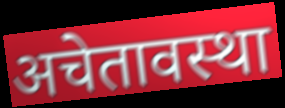
अचेतावस्था